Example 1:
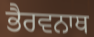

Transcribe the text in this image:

ਭੈਰਵਨਾਥ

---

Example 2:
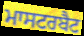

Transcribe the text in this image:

ਮਾਸਟਰਬੈਟ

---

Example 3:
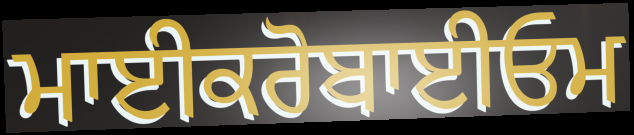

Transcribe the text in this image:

ਮਾਈਕਰੋਬਾਈਓਮ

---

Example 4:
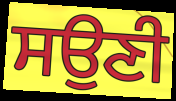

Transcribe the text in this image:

ਸਉਣੀ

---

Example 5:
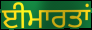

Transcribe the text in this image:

ਈਮਾਰਤਾਂ